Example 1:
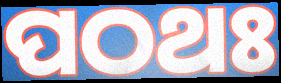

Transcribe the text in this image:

ପଠଥଃ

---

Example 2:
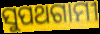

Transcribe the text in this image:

ସୁପଥଗାମୀ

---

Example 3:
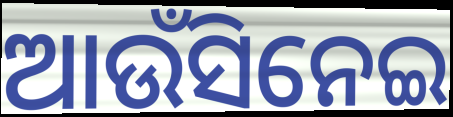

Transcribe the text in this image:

ଆଉଁସିନେଇ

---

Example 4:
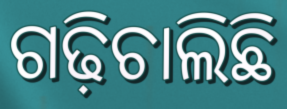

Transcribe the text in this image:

ଗଢ଼ିଚାଲିଛି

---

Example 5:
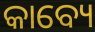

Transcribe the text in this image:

କାବ୍ୟେ